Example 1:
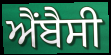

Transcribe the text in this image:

ਐਂਬੈਸੀ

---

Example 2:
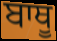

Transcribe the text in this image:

ਬਾਥੂ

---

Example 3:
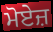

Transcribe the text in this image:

ਮੋਏਜ਼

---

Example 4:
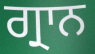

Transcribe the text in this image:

ਗ੍ਰਾਨ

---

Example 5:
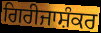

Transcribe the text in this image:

ਗਿਰੀਜਾਸ਼ੰਕਰ